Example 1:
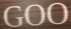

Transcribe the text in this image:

GOO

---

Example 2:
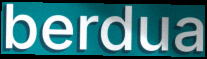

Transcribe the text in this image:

berdua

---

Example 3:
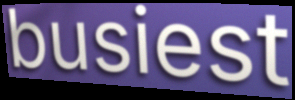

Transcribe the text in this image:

busiest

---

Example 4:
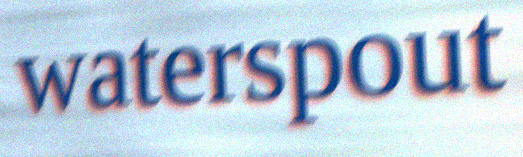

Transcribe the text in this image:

waterspout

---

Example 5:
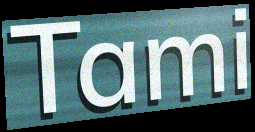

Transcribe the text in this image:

Tami